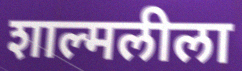
शाल्मलीला